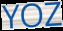
YOZ